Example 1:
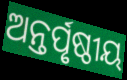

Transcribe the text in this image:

ଅନ୍ତର୍ପୃଷ୍ଠୀୟ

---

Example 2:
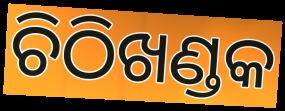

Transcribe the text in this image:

ଚିଠିଖଣ୍ଡକ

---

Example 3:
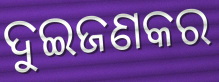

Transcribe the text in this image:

ଦୁଇଜଣକର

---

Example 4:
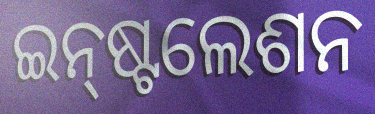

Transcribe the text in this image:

ଇନ୍‌ଷ୍ଟଲେଶନ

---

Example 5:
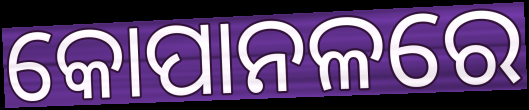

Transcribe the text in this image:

କୋପାନଳରେ